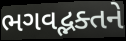
ભગવદ્ભક્તને